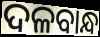
ଦଳବାନ୍ଧ